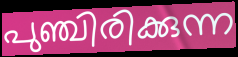
പുഞ്ചിരിക്കുന്ന